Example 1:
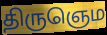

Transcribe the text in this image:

திருஞெம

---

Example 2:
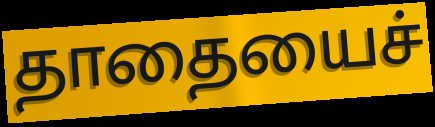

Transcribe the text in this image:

தாதையைச்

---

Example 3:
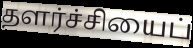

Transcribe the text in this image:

தளர்ச்சியைப்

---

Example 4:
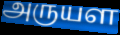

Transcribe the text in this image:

அருயள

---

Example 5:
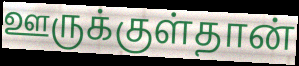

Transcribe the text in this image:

ஊருக்குள்தான்